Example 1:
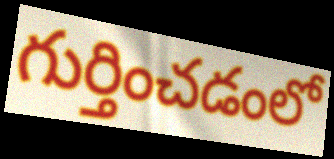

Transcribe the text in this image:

గుర్తించడంలో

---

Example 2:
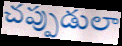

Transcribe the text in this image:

చప్పుడులా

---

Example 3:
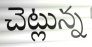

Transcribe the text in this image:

చెట్లున్న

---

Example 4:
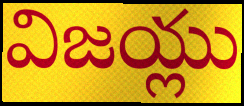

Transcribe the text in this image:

విజయ్లు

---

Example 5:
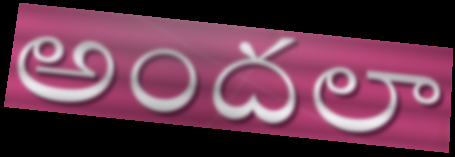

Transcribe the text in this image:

అందలా